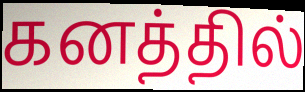
கனத்தில்